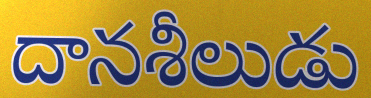
దానశీలుడు